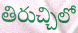
తిరుచ్చిలో